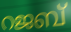
റജബ്